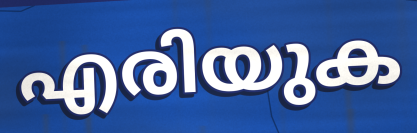
എരിയുക